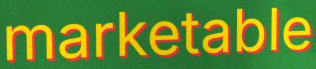
marketable